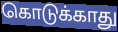
கொடுக்காது